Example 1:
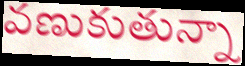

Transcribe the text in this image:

వణుకుతున్నా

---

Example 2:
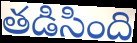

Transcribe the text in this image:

తడిసింది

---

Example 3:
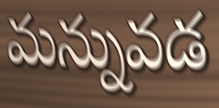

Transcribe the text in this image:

మన్నువడ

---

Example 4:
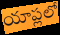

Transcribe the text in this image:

యాప్లలో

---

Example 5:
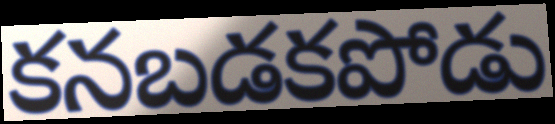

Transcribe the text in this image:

కనబడకపోడు